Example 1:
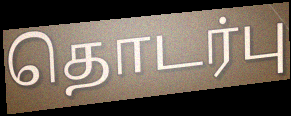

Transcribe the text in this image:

தொடர்பு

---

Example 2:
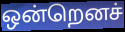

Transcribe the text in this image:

ஒன்றெனச்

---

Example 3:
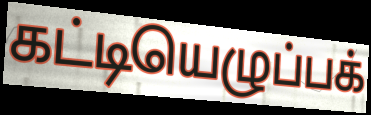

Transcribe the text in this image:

கட்டியெழுப்பக்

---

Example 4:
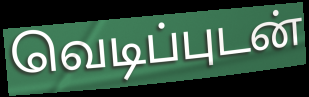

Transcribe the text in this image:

வெடிப்புடன்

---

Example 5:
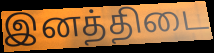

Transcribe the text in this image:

இனத்திடை